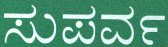
ಸುಪರ್ವ